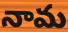
నామ